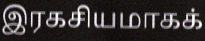
இரகசியமாகக்